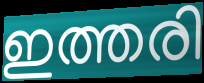
ഇത്തരി